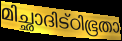
മിച്ഛാദിട്ഠിഭൂതാ